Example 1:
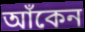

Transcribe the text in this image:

আঁকেন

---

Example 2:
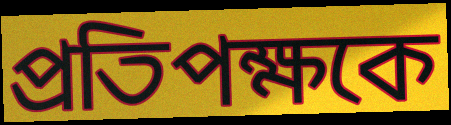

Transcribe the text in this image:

প্রতিপক্ষকে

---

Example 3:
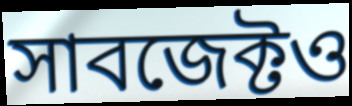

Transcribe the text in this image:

সাবজেক্টও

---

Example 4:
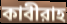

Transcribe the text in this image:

কাবীরাহ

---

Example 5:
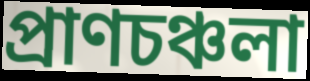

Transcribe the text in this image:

প্রাণচঞ্চলা